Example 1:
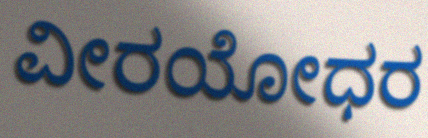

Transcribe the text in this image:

ವೀರಯೋಧರ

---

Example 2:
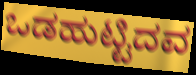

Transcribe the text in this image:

ಒಡಹುಟ್ಟಿದವ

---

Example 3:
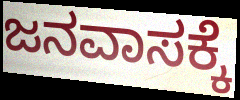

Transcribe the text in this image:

ಜನವಾಸಕ್ಕೆ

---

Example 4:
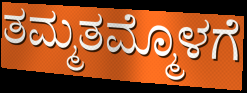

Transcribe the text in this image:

ತಮ್ಮತಮ್ಮೊಳಗೆ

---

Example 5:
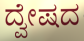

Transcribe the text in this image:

ದ್ವೇಷದ